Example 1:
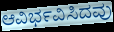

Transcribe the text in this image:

ಆವಿರ್ಭವಿಸಿದವು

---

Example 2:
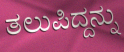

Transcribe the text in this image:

ತಲುಪಿದ್ದನ್ನು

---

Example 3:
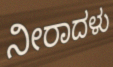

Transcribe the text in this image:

ನೀರಾದಳು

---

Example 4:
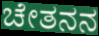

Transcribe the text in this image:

ಚೇತನನ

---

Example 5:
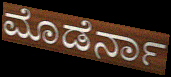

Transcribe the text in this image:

ಮೊಡೆರ್ನಾ